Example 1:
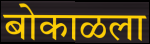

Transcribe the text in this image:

बोकाळला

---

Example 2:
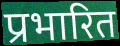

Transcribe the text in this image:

प्रभारित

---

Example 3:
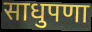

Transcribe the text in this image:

साधुपणा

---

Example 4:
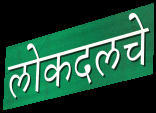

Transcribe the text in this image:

लोकदलचे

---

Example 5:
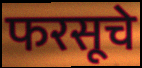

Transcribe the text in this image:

फरसूचे